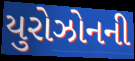
યુરોઝોનની